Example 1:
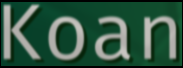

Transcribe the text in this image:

Koan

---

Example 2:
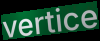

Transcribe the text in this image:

vertice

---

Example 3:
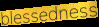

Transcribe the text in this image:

blessedness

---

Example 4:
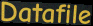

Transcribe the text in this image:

Datafile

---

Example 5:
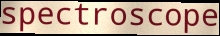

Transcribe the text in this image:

spectroscope